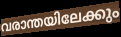
വരാന്തയിലേക്കും